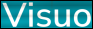
Visuo